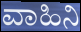
ವಾಹಿನಿ